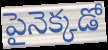
పైనెక్కడో